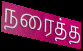
நரைத்த